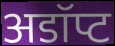
अडॉप्‍ट